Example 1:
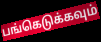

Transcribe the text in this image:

பங்கெடுக்கவும்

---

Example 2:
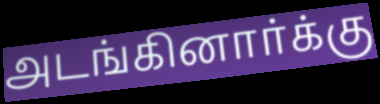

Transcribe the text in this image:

அடங்கினார்க்கு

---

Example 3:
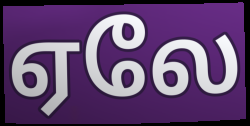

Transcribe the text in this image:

ஏலே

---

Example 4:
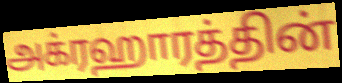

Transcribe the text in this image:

அக்ரஹாரத்தின்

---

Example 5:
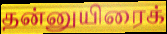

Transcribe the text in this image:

தன்னுயிரைக்